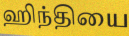
ஹிந்தியை